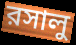
রসালু